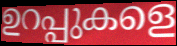
ഉറപ്പുകളെ